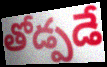
తోడ్పడే